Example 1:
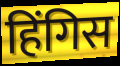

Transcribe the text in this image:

हिंगिस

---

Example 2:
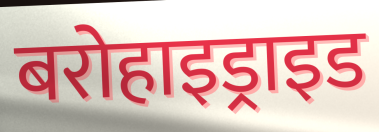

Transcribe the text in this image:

बरोहाइड्राइड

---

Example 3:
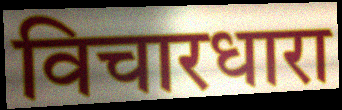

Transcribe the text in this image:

विचारधारा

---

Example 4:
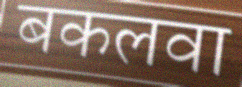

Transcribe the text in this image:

बकलवा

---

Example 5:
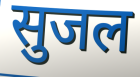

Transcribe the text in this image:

सुजल